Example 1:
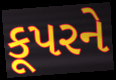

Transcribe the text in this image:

કૂપરને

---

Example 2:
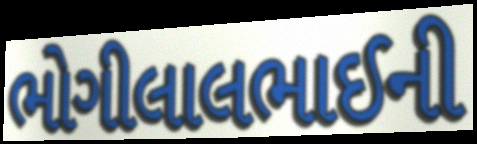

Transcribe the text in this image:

ભોગીલાલભાઈની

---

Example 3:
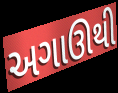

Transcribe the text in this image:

અગાઊથી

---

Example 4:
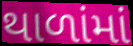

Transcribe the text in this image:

થાળાંમાં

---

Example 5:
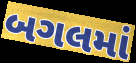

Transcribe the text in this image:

બગલમાં